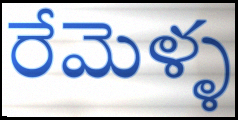
రేమెళ్ళ